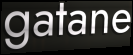
gatane